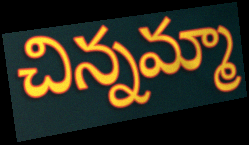
చిన్నమ్మా